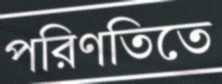
পরিণতিতে